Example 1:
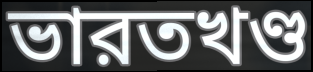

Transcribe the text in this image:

ভারতখণ্ড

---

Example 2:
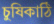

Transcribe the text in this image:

চুষিকাঠি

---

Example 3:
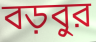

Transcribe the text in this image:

বড়বুর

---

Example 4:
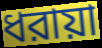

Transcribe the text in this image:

ধরায়া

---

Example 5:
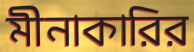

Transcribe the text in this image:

মীনাকারির